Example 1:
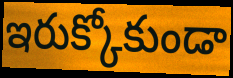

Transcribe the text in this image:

ఇరుక్కోకుండా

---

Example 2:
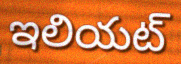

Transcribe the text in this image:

ఇలియట్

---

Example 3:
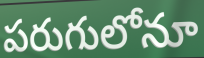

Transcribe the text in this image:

పరుగులోనూ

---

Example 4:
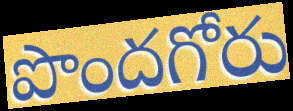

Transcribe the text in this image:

పొందగోరు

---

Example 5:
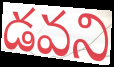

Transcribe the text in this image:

డవని